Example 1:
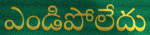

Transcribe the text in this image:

ఎండిపోలేదు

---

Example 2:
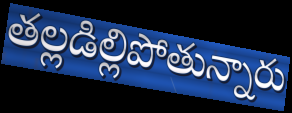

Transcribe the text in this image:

తల్లడిల్లిపోతున్నారు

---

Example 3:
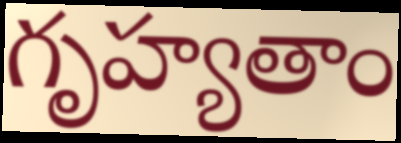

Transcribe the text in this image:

గృహ్యతాం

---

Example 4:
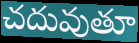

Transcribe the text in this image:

చదువుతూ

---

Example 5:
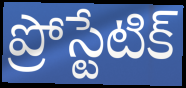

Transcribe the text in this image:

ప్రోస్టేటిక్